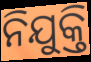
ନିଯୁକ୍ତି